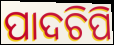
ପାଦଚିପି